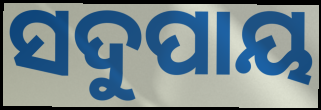
ସଦୁପାୟ